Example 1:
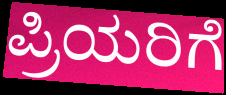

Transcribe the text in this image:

ಪ್ರಿಯರಿಗೆ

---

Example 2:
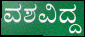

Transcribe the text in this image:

ವಶವಿದ್ದ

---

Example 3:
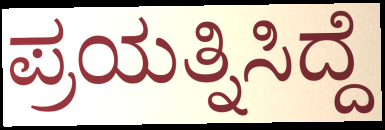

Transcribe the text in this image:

ಪ್ರಯತ್ನಿಸಿದ್ದೆ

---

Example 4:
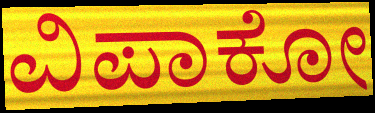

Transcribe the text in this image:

ವಿಪಾಕೋ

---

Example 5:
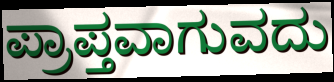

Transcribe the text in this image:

ಪ್ರಾಪ್ತವಾಗುವದು